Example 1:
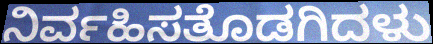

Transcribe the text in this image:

ನಿರ್ವಹಿಸತೊಡಗಿದಳು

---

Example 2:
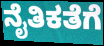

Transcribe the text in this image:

ನೈತಿಕತೆಗೆ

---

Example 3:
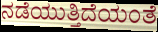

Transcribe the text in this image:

ನಡೆಯುತ್ತಿದೆಯಂತೆ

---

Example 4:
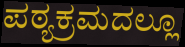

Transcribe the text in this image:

ಪಠ್ಯಕ್ರಮದಲ್ಲೂ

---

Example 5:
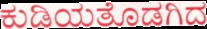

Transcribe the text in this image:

ಕುಡಿಯತೊಡಗಿದ